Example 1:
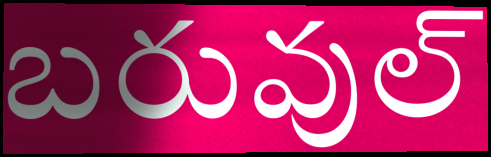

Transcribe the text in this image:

బరువుల్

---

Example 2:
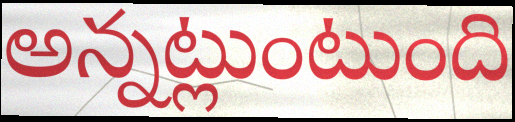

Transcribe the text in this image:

అన్నట్లుంటుంది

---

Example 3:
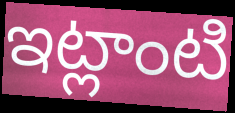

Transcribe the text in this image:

ఇట్లాంటి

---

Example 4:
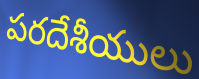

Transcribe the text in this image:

పరదేశీయులు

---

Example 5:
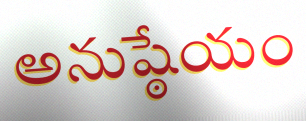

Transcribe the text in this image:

అనుష్ఠేయం